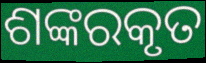
ଶଙ୍କରକୃତ